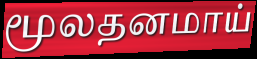
மூலதனமாய்